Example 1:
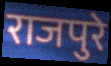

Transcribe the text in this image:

राजपुरे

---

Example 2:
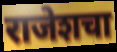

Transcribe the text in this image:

राजेशचा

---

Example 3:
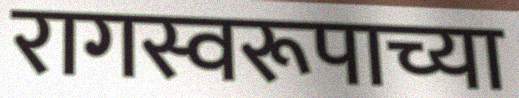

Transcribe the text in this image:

रागस्वरूपाच्या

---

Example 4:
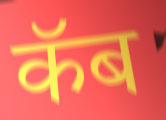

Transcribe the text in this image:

कॅब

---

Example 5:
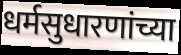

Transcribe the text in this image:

धर्मसुधारणांच्या